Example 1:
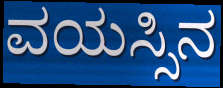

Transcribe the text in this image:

ವಯಸ್ಸಿನ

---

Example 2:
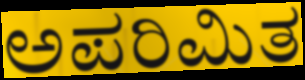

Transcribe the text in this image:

ಅಪರಿಮಿತ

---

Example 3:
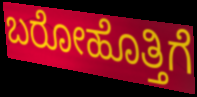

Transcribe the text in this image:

ಬರೋಹೊತ್ತಿಗೆ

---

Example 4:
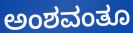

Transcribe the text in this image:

ಅಂಶವಂತೂ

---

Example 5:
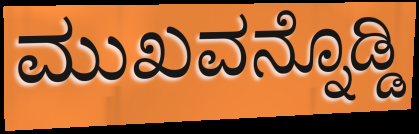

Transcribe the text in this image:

ಮುಖವನ್ನೊಡ್ಡಿ